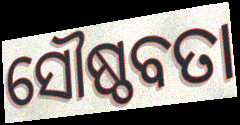
ସୌଷ୍ଠବତା